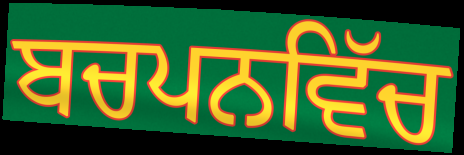
ਬਚਪਨਵਿੱਚ